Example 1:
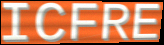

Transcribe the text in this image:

ICFRE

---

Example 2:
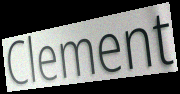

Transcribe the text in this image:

Clement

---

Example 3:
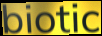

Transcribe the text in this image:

biotic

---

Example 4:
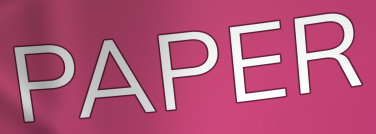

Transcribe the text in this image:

PAPER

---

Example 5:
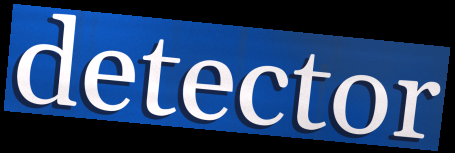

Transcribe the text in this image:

detector